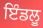
ਇੰਡਲੂ